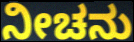
ನೀಚನು